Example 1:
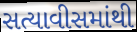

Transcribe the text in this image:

સત્યાવીસમાંથી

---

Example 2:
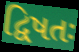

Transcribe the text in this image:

દ્વિષતઃ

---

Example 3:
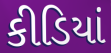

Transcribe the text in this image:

કીડિયાં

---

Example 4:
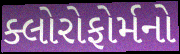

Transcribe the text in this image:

ક્લોરોફોર્મનો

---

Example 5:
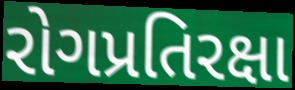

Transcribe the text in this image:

રોગપ્રતિરક્ષા